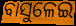
ବାସୁଳେଇ